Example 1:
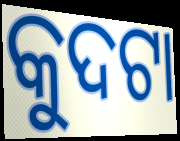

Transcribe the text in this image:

କୁଦଟା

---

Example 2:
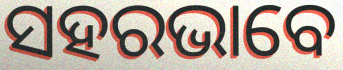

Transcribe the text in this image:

ସହରଭାବେ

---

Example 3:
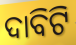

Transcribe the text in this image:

ଦାବିଟି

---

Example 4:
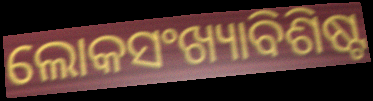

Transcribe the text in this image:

ଲୋକସଂଖ୍ୟାବିଶିଷ୍ଟ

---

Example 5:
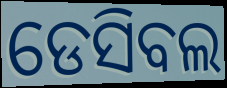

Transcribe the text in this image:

ଡେସିବଲ